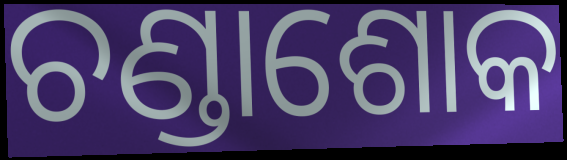
ଚଣ୍ଡାଶୋକ